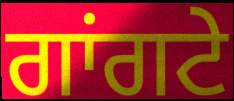
ਗਾਂਗਟੇ